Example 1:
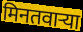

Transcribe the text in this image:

मिनतवार्‍या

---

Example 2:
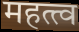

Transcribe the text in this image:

महत्‍त्‍व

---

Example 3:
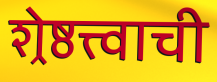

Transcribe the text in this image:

श्रेष्ठत्त्वाची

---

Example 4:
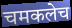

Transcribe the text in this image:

चमकलेच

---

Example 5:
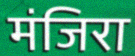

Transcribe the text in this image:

मंजिरा